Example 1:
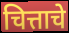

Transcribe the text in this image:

चित्ताचे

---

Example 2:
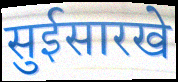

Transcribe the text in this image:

सुईसारखे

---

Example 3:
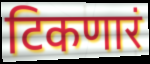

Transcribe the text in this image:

टिकणारं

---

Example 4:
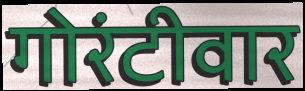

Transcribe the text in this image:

गोरंटीवार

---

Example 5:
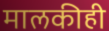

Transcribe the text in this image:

मालकीही